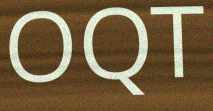
OQT